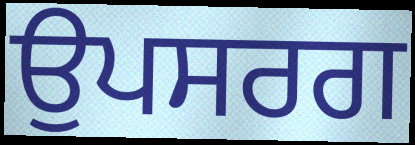
ਉਪਸਰਗ